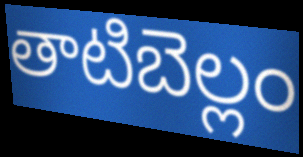
తాటిబెల్లం